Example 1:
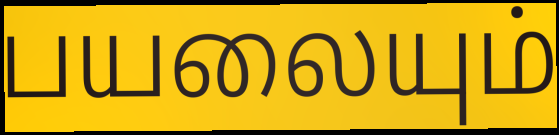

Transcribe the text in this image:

பயலையும்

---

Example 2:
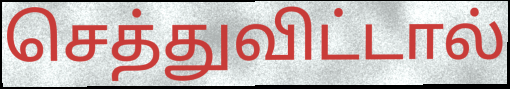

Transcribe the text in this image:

செத்துவிட்டால்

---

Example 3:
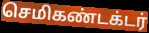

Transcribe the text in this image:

செமிகண்டக்டர்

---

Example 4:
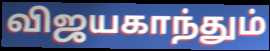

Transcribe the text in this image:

விஜயகாந்தும்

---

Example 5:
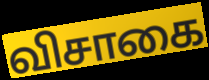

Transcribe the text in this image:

விசாகை